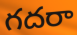
గదరా